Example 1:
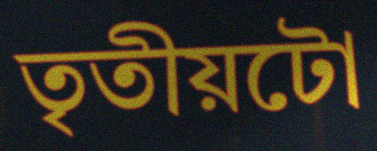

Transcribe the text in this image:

তৃতীয়টো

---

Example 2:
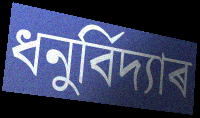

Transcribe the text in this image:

ধনুৰ্বিদ্যাৰ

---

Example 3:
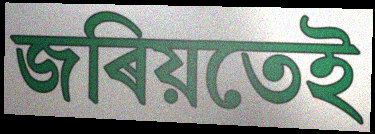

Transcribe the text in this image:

জৰিয়তেই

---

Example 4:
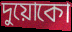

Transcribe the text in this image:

দুয়োকো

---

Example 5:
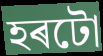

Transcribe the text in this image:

হৰটো